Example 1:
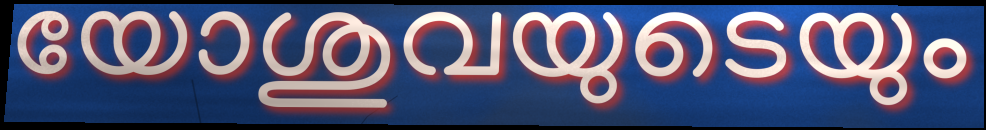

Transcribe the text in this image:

യോശുവയുടെയും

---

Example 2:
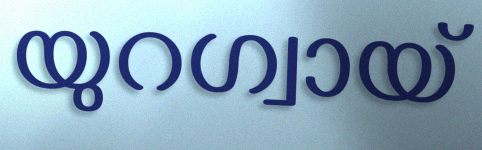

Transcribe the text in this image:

യുറഗ്വായ്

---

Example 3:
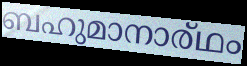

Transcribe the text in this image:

ബഹുമാനാര്ഥം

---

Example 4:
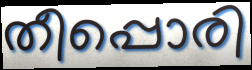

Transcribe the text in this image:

തീപ്പൊരി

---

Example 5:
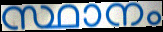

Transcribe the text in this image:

സ്ഥാനം